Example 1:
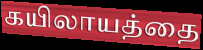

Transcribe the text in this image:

கயிலாயத்தை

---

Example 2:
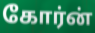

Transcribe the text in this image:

கோர்ன்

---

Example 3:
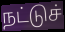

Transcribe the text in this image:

நட்டுச்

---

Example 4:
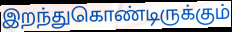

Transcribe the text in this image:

இறந்துகொண்டிருக்கும்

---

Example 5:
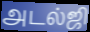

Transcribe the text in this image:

அடல்ஜி